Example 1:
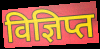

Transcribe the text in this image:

विज्ञिप्त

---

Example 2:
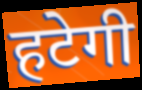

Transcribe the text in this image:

हटेगी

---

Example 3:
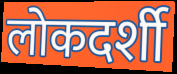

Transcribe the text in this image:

लोकदर्शी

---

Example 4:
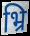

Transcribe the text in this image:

भ्रि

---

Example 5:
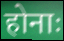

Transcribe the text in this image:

होनाः